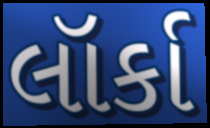
લૉર્કા